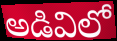
అడివిలో